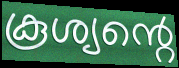
കൂശ്യന്റെ